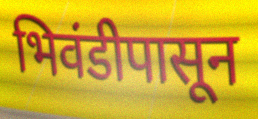
भिवंडीपासून